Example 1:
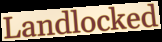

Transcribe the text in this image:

Landlocked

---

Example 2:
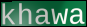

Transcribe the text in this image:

khawa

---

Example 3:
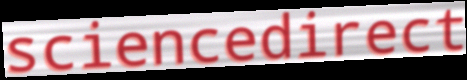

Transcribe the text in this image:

sciencedirect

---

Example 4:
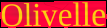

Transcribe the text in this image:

Olivelle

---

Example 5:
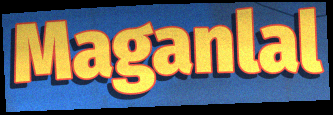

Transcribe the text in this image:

Maganlal